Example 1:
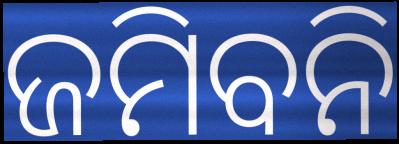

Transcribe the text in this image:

ଜମିବନି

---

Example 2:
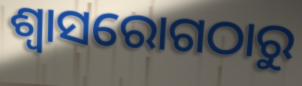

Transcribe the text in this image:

ଶ୍ୱାସରୋଗଠାରୁ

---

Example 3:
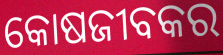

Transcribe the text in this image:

କୋଷଜୀବକର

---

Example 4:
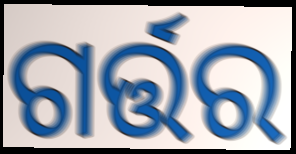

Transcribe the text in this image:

ଗର୍ତ୍ତର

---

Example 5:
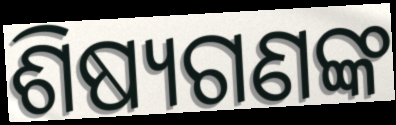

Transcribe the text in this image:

ଶିଷ୍ୟଗଣଙ୍କ